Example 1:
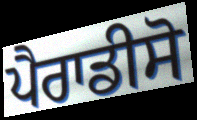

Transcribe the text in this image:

ਪੈਰਾਡੀਸੋ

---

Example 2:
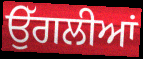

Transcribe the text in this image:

ਉੱਗਲੀਆਂ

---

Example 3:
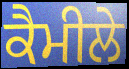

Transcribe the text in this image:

ਕੈਮੀਲੇ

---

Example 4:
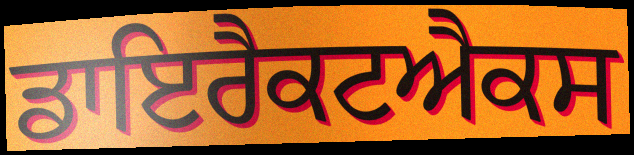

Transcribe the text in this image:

ਡਾਇਰੈਕਟਐਕਸ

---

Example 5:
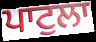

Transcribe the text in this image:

ਪਾਟੁਲਾ